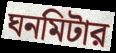
ঘনমিটার